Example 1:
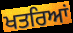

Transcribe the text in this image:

ਖਤਰਿਆਂ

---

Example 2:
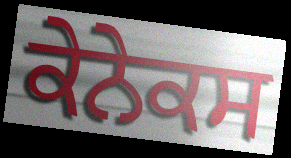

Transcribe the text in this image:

ਕੇਨੇਕਸ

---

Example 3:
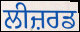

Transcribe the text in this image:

ਲੀਜ਼ਰਡ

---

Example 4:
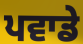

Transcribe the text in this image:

ਪਵਾਡੇ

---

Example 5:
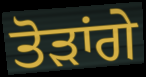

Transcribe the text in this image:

ਤੋੜਾਂਗੇ